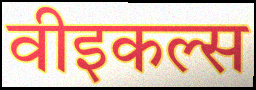
वीइकल्स